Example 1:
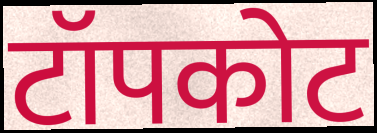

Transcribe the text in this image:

टॉपकोट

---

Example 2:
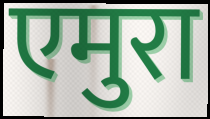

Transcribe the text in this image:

एमुरा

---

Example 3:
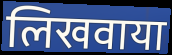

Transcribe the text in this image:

लिखवाया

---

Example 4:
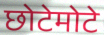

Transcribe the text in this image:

छोटेमोटे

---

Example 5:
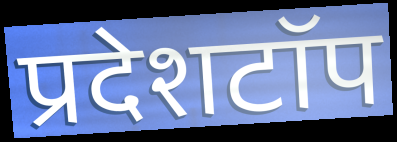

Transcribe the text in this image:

प्रदेशटॉप